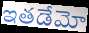
ఇతడేమో